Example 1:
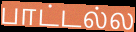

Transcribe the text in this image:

பாட்டல்ல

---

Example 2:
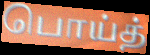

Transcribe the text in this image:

பொய்த்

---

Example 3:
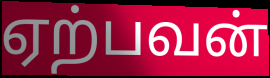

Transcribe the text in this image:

ஏற்பவன்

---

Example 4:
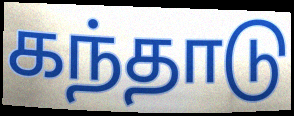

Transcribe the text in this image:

கந்தாடு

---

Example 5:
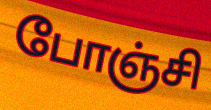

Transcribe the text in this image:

போஞ்சி